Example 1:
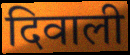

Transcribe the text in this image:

दिवाली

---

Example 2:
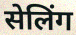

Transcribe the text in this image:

सेलिंग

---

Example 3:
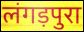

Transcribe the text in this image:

लंगड़पुरा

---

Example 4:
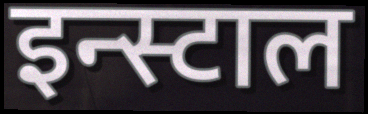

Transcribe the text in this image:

इन्स्टाल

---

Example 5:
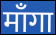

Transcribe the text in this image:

माँगा